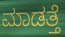
ಮಾಡತ್ತೆ